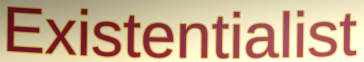
Existentialist